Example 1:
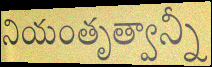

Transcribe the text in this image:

నియంతృత్వాన్నీ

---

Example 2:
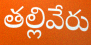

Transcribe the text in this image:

తల్లివేరు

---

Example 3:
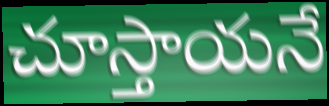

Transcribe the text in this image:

చూస్తాయనే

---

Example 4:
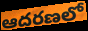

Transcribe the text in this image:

ఆదరణలో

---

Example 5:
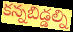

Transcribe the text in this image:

కన్నబిడ్డల్ని